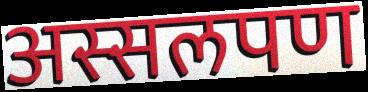
अस्सलपण